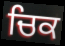
ਚਿਕ